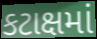
કટાક્ષમાં